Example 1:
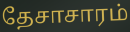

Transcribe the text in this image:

தேசாசாரம்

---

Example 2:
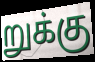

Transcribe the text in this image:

றுக்கு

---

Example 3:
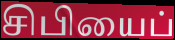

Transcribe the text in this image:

சிபியைப்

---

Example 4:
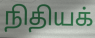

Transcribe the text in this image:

நிதியக்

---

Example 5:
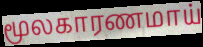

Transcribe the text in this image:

மூலகாரணமாய்